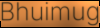
Bhuimug